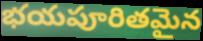
భయపూరితమైన